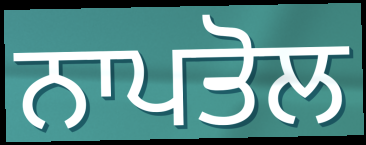
ਨਾਪਤੋਲ